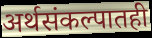
अर्थसंकल्पातही